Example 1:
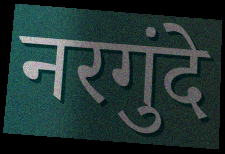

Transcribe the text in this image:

नरगुंदे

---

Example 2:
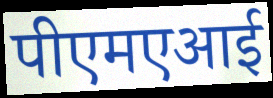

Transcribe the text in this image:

पीएमएआई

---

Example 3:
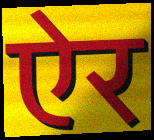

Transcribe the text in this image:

ऐर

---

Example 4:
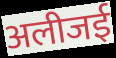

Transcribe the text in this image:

अलीजई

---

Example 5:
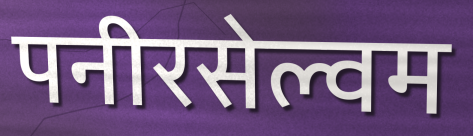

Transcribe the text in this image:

पनीरसेल्वम